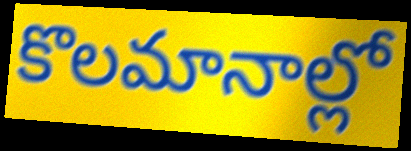
కొలమానాల్లో